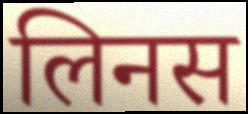
लिनस